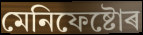
মেনিফেষ্টোৰ